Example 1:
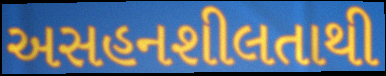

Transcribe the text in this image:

અસહનશીલતાથી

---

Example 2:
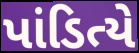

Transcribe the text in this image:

પાંડિત્યે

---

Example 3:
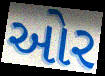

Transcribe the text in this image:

ઓર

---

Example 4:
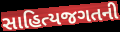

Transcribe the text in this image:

સાહિત્યજગતની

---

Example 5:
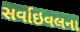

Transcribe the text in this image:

સર્વાઇવલના